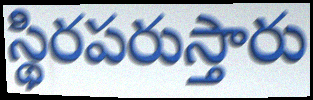
స్థిరపరుస్తారు